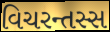
વિચરન્તસ્સ